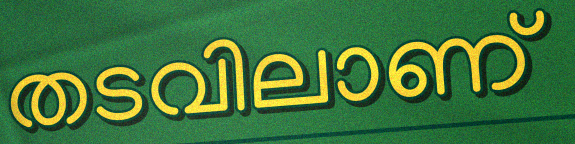
തടവിലാണ്